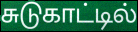
சுடுகாட்டில்